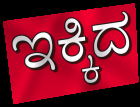
ಇಕ್ಕಿದ